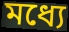
মধ্যে